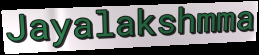
Jayalakshmma